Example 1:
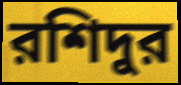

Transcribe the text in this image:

রশিদুর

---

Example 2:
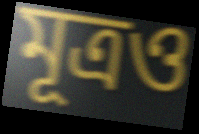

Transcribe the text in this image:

মূত্রও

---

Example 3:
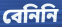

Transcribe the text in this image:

বেনিনি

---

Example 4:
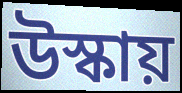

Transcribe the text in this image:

উস্কায়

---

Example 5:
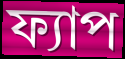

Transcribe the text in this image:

ফ্যাপ